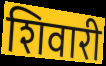
शिवारी